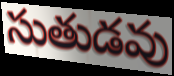
సుతుడవు